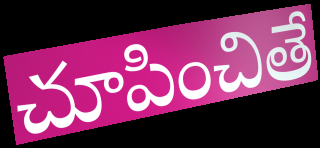
చూపించితే